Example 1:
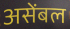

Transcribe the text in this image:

असेंबल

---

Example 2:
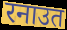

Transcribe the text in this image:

रनाउत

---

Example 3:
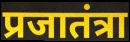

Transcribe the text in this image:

प्रजातंत्रा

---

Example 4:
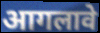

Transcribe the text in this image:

आगलावे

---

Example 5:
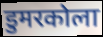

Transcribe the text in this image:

डुमरकोला